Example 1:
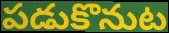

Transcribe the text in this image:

పడుకొనుట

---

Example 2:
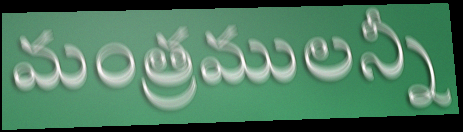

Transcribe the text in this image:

మంత్రములన్నీ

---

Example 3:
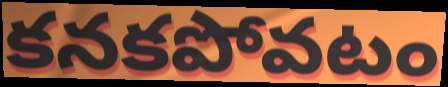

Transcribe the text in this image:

కనకపోవటం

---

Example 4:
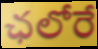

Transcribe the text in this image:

ఛలోరే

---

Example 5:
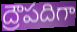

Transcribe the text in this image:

ద్రౌపదిగా